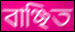
বাঞ্ছিত